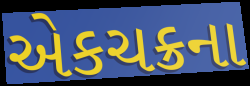
એકચક્રના